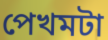
পেখমটা